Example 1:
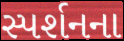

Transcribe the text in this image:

સ્પર્શનના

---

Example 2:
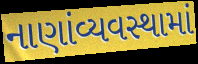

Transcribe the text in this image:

નાણાંવ્યવસ્થામાં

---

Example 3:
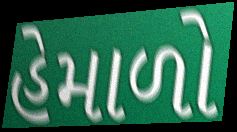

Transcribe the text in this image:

હેમાળો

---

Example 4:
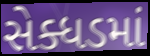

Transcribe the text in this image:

સેક્ધડમાં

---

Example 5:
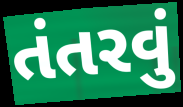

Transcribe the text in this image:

તંતરવું